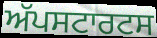
ਅੱਪਸਟਾਰਟਸ